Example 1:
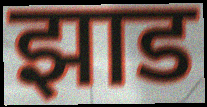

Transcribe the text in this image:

झाड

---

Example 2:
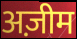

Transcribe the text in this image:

अज़ीम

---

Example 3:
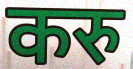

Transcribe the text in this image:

करु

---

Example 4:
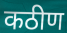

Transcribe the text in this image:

कठीण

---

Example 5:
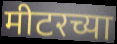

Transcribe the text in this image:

मीटरच्या